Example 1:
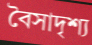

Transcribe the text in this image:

বৈসাদৃশ্য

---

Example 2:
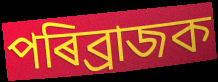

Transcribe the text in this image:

পৰিব্ৰাজক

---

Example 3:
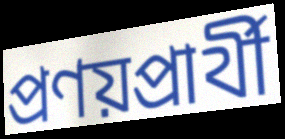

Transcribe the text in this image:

প্ৰণয়প্ৰাৰ্থী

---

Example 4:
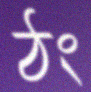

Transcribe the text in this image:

ঠং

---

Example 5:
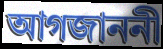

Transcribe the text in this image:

আগজাননী